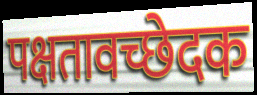
पक्षतावच्छेदक